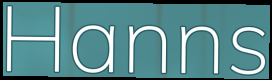
Hanns